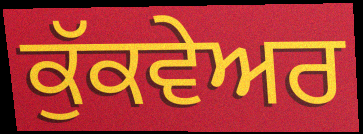
ਕੁੱਕਵੇਅਰ